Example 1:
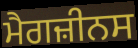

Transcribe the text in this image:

ਮੈਗਜ਼ੀਨਸ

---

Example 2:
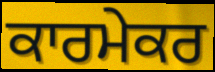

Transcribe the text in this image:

ਕਾਰਮੇਕਰ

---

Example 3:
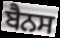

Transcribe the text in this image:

ਬੈਨਸ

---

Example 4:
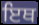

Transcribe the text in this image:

ਇਥ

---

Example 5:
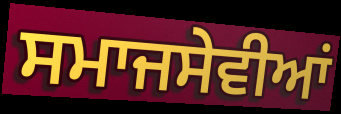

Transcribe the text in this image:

ਸਮਾਜਸੇਵੀਆਂ